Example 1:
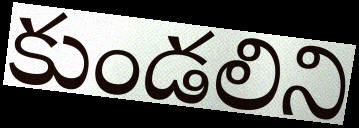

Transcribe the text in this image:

కుండలిని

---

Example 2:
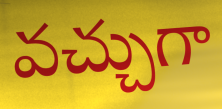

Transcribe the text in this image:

వచ్చుగా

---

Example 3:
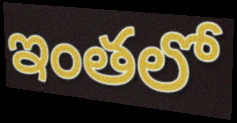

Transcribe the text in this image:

ఇంతలో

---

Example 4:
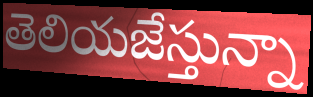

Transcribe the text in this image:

తెలియజేస్తున్నా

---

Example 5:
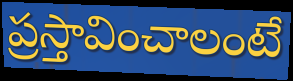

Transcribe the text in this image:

ప్రస్తావించాలంటే